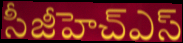
సీజీహెచ్ఎస్